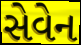
સેવેન